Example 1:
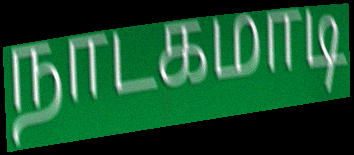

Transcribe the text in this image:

நாடகமாடி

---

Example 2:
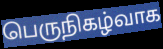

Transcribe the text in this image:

பெருநிகழ்வாக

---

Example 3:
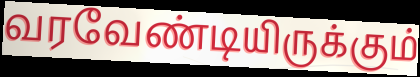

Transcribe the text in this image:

வரவேண்டியிருக்கும்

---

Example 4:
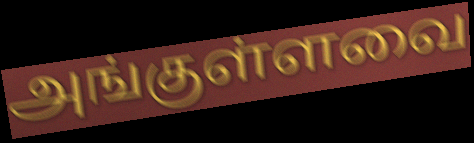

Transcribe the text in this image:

அங்குள்ளவை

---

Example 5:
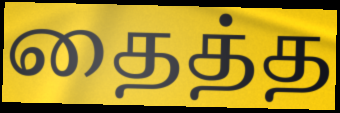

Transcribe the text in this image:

தைத்த